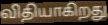
விதியாகிறது